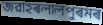
জৱাহৰলালপুৰমৰ